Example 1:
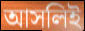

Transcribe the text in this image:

আসলিই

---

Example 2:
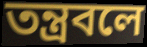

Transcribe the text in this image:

তন্ত্রবলে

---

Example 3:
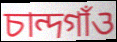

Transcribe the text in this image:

চান্দগাঁও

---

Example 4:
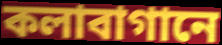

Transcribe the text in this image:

কলাবাগানে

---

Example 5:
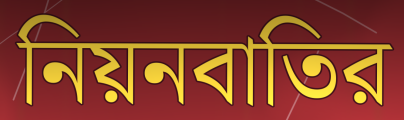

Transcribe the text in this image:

নিয়নবাতির